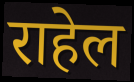
राहेल